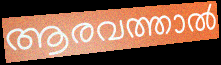
ആരവത്താൽ